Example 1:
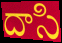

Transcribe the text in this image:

దాసి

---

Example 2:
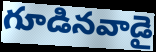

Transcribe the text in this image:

గూడినవాడై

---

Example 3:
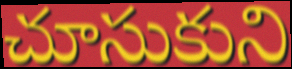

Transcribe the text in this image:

చూసుకుని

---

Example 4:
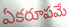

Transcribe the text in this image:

ఏకరూపమే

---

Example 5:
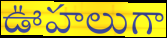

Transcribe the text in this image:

ఊహలుగా